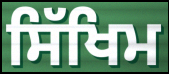
ਸਿੱਖਿਮ